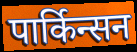
पार्किन्सन